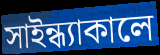
সাইন্ধ্যাকালে